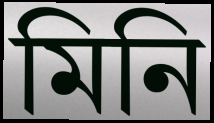
মিনি